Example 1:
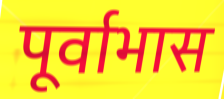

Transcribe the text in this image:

पूर्वाभास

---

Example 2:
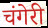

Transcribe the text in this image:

चंगेरी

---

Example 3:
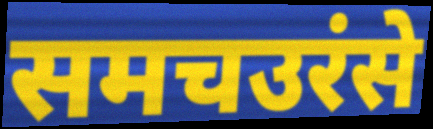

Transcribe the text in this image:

समचउरंसे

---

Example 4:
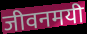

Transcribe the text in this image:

जीवनमयी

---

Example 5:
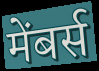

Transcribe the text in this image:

मेंबर्स